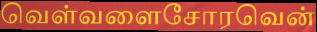
வெள்வளைசோரவென்